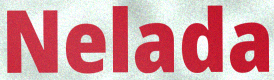
Nelada